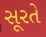
સૂરતે